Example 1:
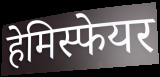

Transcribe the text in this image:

हेमिस्फेयर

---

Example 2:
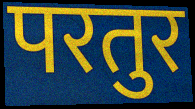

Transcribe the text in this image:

परतुर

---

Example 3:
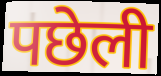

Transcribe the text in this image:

पछेली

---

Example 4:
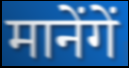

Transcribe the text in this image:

मानेंगें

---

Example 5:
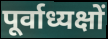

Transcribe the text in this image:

पूर्वाध्यक्षों